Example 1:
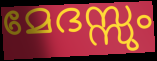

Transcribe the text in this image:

മേദസ്സും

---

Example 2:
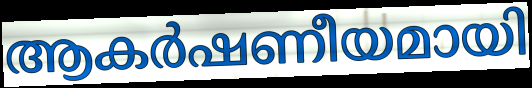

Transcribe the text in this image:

ആകർഷണീയമായി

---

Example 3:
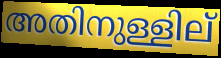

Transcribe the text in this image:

അതിനുള്ളില്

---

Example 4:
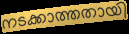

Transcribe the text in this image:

നടക്കാത്തതായി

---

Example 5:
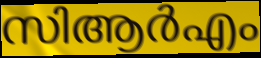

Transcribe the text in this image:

സിആർഎം